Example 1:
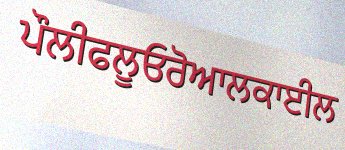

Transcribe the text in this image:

ਪੌਲੀਫਲੂਓਰੋਆਲਕਾਈਲ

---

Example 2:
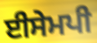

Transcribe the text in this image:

ਈਸੇਮਪੀ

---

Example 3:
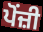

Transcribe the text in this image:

ਪੋਂਜ਼ੀ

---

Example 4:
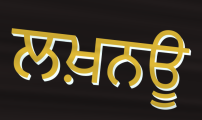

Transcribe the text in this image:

ਲਖ਼ਨਊ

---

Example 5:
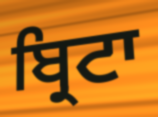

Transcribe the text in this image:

ਬ੍ਰਿਟਾ